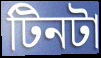
টিনটা